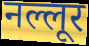
नल्लूर